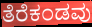
ತೆರೆಕಂಡವು